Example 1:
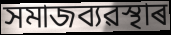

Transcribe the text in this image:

সমাজব্যৱস্থাৰ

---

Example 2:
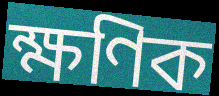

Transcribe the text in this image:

ক্ষণিক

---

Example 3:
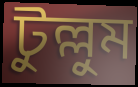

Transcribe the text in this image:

টুল্লুম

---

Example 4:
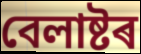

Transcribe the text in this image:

বেলাষ্টৰ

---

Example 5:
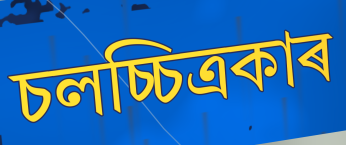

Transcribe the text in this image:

চলচ্চিত্ৰকাৰ